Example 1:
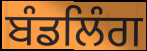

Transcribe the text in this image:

ਬੰਡਲਿੰਗ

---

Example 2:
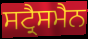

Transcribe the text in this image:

ਸਟ੍ਰੈਸਮੈਨ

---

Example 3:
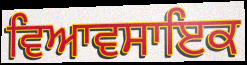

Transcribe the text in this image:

ਵਿਆਵਸਾਇਕ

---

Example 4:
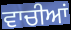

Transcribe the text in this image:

ਵਾਚੀਆਂ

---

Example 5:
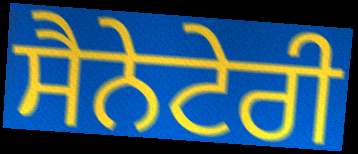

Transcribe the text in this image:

ਸੈਨੇਟੇਰੀ